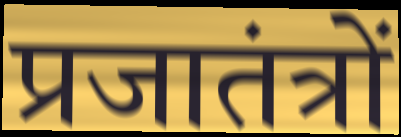
प्रजातंत्रों